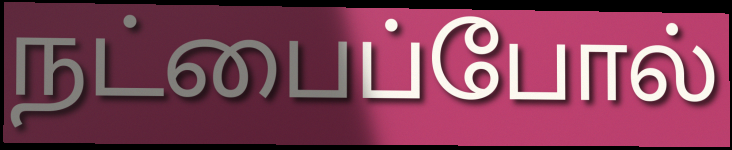
நட்பைப்போல்